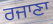
ਰਜਾਣਾ